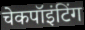
चेकपॉइंटिंग